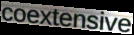
coextensive